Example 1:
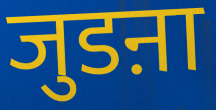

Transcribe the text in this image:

जुडऩा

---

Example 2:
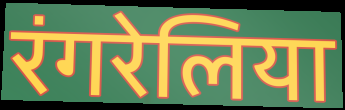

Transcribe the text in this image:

रंगरेलिया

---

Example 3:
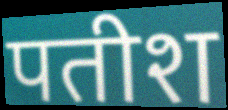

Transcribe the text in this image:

पतीश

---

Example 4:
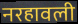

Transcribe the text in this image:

नरहावली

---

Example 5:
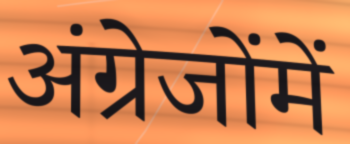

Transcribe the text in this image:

अंग्रेजोंमें